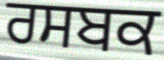
ਰਸਬਕ